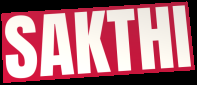
SAKTHI